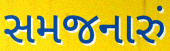
સમજનારું